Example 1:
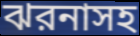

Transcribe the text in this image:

ঝরনাসহ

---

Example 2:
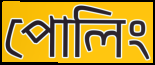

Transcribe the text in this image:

পোলিং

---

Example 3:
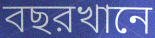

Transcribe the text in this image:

বছরখানে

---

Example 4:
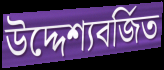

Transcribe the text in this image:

উদ্দেশ্যবর্জিত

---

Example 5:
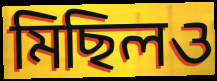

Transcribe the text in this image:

মিছিলও